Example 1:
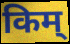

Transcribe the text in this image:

किम्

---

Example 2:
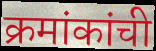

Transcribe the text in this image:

क्रमांकांची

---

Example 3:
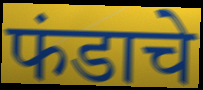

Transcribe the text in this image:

फंडाचे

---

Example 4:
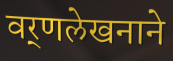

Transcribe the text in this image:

वर्णलेखनाने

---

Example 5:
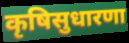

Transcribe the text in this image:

कृषिसुधारणा